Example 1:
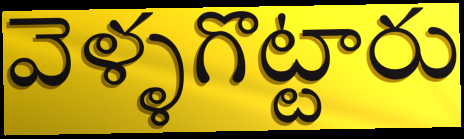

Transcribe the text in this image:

వెళ్ళగొట్టారు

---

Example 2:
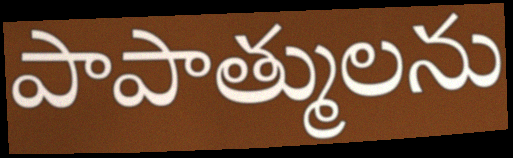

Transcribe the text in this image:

పాపాత్ములను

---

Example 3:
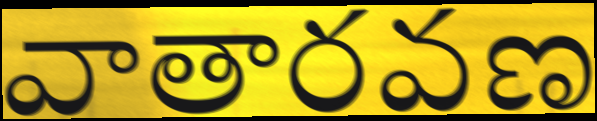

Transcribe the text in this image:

వాతారవణ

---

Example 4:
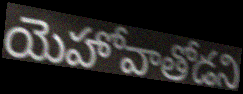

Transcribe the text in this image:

యెహోవాతోడని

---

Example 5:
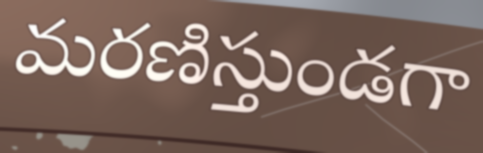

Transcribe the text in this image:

మరణిస్తుండగా